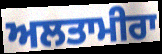
ਅਲਤਾਮੀਰਾ